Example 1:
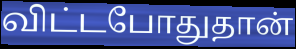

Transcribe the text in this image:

விட்டபோதுதான்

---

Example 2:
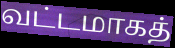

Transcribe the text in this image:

வட்டமாகத்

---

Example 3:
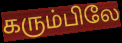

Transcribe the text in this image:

கரும்பிலே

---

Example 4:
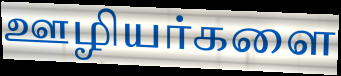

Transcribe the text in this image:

ஊழியர்களை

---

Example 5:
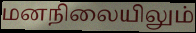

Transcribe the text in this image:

மனநிலையிலும்